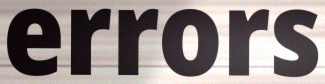
errors